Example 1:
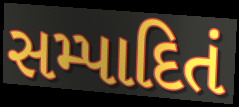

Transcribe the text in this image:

સમ્પાદિતં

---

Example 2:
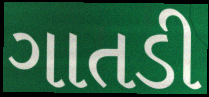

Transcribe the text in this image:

ગાતડી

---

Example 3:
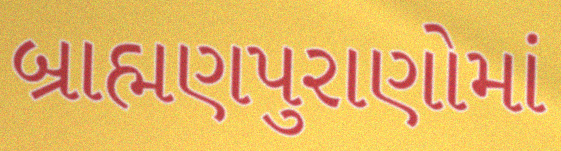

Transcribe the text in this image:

બ્રાહ્મણપુરાણોમાં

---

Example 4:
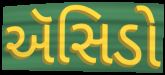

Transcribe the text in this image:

ઍસિડો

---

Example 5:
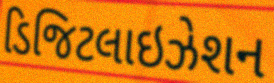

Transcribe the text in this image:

ડિજિટલાઇઝેશન